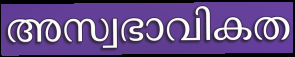
അസ്വഭാവികത